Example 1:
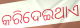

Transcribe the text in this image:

କରିଦେଇଥାଏ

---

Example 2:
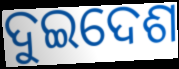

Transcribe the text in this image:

ଦୁଇଦେଶ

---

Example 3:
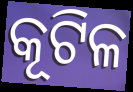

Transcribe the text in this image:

କୂଟିଳ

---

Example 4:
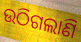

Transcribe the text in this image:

ଉଠିଗଲାଣି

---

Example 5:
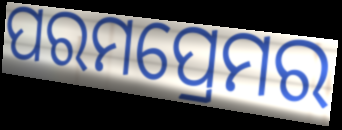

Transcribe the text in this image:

ପରମପ୍ରେମର